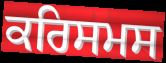
ਕਰਿਸਮਸ